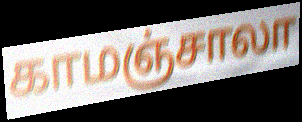
காமஞ்சாலா